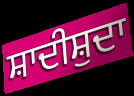
ਸ਼ਾਦੀਸ਼ੁਦਾ